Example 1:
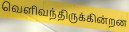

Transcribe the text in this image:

வெளிவந்திருக்கின்றன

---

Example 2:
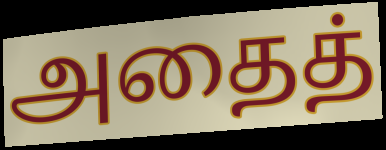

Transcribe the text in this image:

அதைத்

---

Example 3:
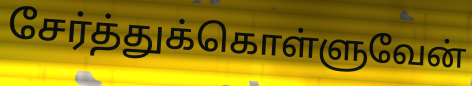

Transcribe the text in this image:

சேர்த்துக்கொள்ளுவேன்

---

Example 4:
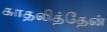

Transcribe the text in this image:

காதலித்தேன்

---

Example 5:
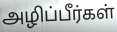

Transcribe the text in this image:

அழிப்பீர்கள்